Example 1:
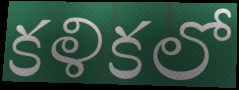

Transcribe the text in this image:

కళికలో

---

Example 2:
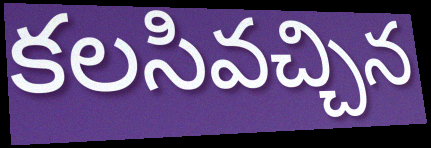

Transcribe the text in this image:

కలసివచ్చిన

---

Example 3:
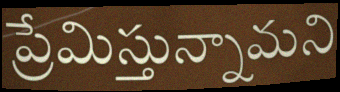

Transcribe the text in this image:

ప్రేమిస్తున్నామని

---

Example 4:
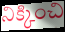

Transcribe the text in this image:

నిక్కించి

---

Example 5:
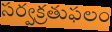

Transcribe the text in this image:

సర్వక్రతుఫలం